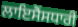
ਲਾਇਸੈਂਸਧਾਰੀ